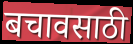
बचावसाठी